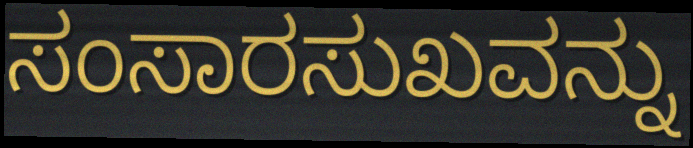
ಸಂಸಾರಸುಖವನ್ನು